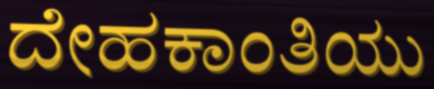
ದೇಹಕಾಂತಿಯು